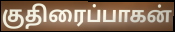
குதிரைப்பாகன்